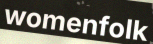
womenfolk